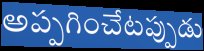
అప్పగించేటప్పుడు